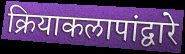
क्रियाकलापांद्वारे